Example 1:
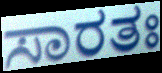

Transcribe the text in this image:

ಸಾರತಃ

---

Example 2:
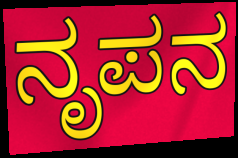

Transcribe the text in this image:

ನೃಪನ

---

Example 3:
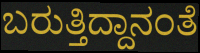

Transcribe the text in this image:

ಬರುತ್ತಿದ್ದಾನಂತೆ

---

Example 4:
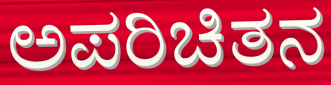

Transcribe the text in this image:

ಅಪರಿಚಿತನ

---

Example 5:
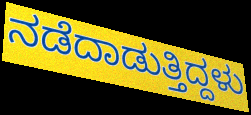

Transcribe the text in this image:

ನಡೆದಾಡುತ್ತಿದ್ದಳು